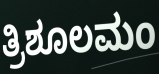
ತ್ರಿಶೂಲಮಂ